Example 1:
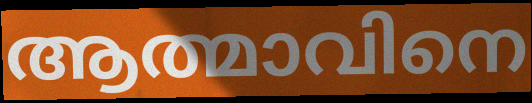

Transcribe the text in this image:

ആത്മാവിനെ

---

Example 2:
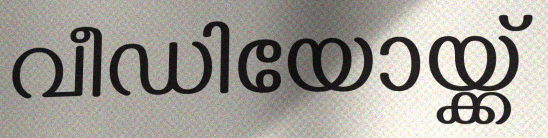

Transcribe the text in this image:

വീഡിയോയ്ക്ക്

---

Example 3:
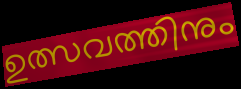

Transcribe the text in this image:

ഉത്സവത്തിനും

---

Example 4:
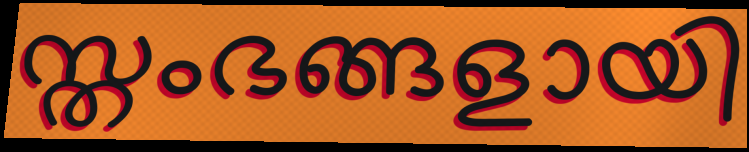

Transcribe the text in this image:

സ്തംഭങ്ങളായി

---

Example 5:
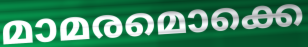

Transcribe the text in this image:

മാമരമൊക്കെ